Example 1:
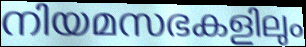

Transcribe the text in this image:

നിയമസഭകളിലും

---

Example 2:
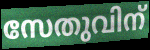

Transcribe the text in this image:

സേതുവിന്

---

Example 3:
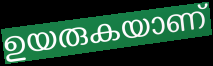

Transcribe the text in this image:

ഉയരുകയാണ്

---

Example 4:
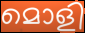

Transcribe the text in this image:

മൊളി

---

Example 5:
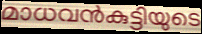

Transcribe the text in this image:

മാധവൻകുട്ടിയുടെ